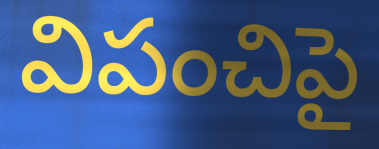
విపంచిపై